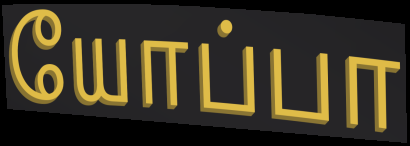
யோப்பா